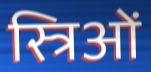
स्त्रिओं